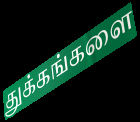
துக்கங்களை